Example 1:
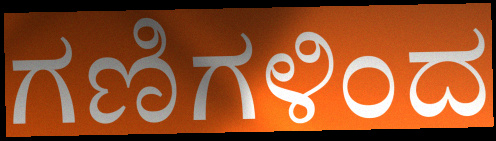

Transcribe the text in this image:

ಗಣಿಗಳಿಂದ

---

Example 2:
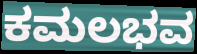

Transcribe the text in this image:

ಕಮಲಭವ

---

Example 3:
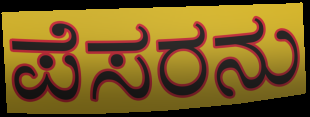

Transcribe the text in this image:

ಪೆಸರನು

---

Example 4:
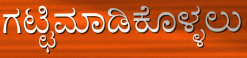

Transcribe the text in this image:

ಗಟ್ಟಿಮಾಡಿಕೊಳ್ಳಲು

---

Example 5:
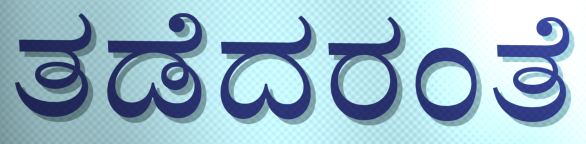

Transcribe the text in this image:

ತಡೆದರಂತೆ